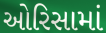
ઓરિસામાં